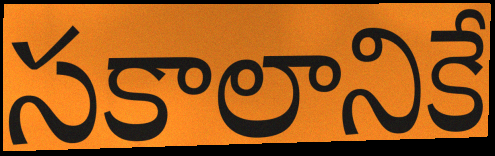
సకాలానికే